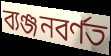
ব্যঞ্জনবৰ্ণত